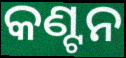
କଣ୍ଟନ